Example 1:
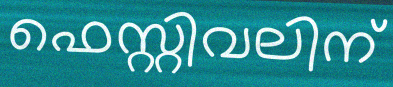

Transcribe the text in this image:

ഫെസ്റ്റിവലിന്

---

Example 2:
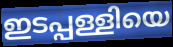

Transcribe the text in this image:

ഇടപ്പള്ളിയെ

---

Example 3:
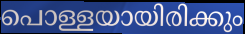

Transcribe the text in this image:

പൊള്ളയായിരിക്കും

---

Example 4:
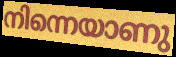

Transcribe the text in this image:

നിന്നെയാണു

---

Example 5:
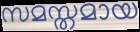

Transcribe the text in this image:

സമസ്തമായ